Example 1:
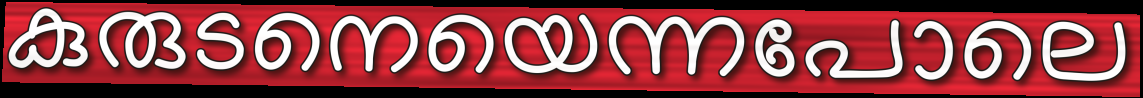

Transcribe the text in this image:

കുരുടനെയെന്നപോലെ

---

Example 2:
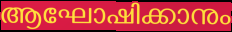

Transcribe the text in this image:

ആഘോഷിക്കാനും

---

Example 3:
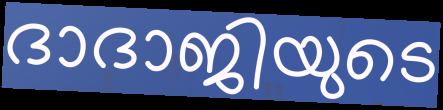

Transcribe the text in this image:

ദാദാജിയുടെ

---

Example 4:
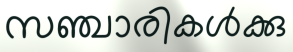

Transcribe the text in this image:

സഞ്ചാരികൾക്കു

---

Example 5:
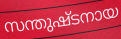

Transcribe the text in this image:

സന്തുഷ്ടനായ